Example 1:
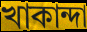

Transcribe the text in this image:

খাকান্দা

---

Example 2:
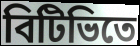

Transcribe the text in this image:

বিটিভিতে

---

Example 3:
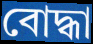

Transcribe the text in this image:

বোদ্ধা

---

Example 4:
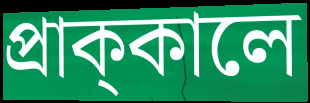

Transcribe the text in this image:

প্রাক্‌কালে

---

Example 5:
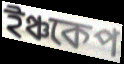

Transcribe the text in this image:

ইঞ্চকেপ